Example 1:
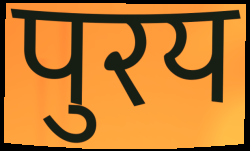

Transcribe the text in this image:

पुरय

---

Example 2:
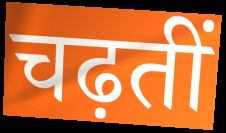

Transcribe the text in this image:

चढ़तीं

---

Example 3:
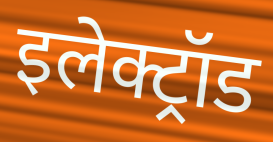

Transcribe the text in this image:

इलेक्ट्रॉड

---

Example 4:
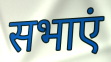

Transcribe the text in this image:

सभाएं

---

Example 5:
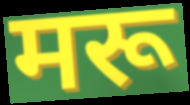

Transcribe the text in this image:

मरू